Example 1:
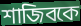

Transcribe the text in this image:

শাজিবকে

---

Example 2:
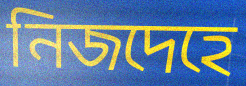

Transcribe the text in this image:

নিজদেহে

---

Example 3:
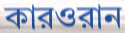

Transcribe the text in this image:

কারওরান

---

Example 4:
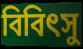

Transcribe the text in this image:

বিবিৎসু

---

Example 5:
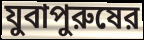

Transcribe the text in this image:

যুবাপুরুষের